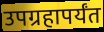
उपग्रहापर्यंत